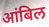
आंबिल